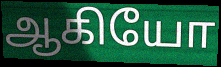
ஆகியோ